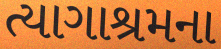
ત્યાગાશ્રમના